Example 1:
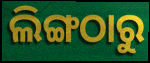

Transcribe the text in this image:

ଲିଙ୍ଗଠାରୁ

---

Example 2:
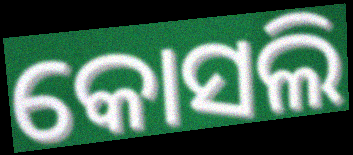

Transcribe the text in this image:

କୋସଲି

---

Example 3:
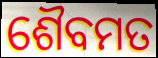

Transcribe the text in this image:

ଶୈବମତ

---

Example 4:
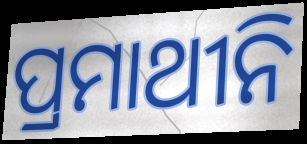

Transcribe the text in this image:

ପ୍ରମାଥୀନି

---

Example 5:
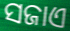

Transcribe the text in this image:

ସଜାଏ